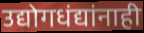
उद्योगधंद्यांनाही